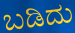
ಬಡಿದು